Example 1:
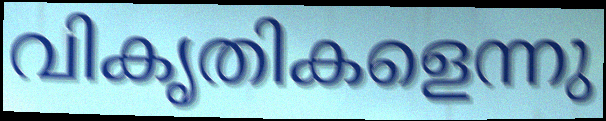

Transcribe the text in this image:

വികൃതികളെന്നു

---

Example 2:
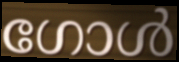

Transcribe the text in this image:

ഗോൾ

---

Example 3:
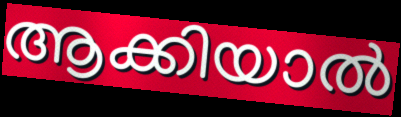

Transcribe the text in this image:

ആക്കിയാൽ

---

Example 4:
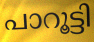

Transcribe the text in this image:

പാറൂട്ടി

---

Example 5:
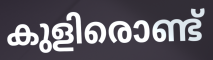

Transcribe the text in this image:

കുളിരൊണ്ട്